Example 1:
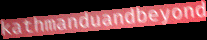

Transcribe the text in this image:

kathmanduandbeyond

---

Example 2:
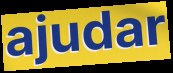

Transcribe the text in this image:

ajudar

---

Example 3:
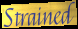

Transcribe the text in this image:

Strained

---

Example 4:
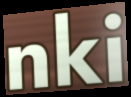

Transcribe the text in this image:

nki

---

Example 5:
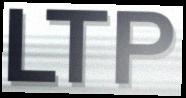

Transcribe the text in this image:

LTP